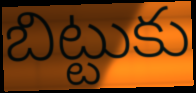
బిట్టుకు